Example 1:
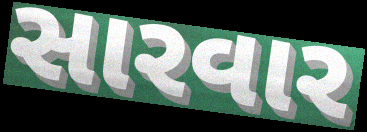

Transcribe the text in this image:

સારવાર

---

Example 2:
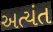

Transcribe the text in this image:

અત્યંત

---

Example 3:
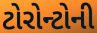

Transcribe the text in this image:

ટોરોન્ટોની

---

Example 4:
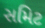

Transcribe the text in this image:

સમિટ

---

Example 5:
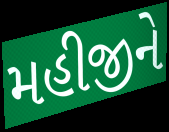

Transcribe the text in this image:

મહીજીને